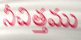
నీచిత్తము